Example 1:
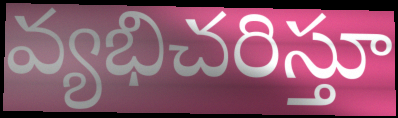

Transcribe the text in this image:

వ్యభిచరిస్తూ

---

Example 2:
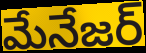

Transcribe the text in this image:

మేనేజర్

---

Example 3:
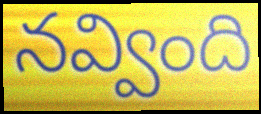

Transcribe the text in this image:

నవ్వింది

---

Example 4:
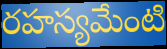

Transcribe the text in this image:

రహస్యమేంటి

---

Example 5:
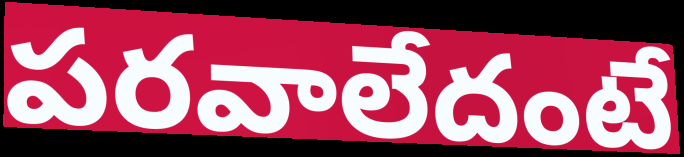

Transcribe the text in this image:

పరవాలేదంటే